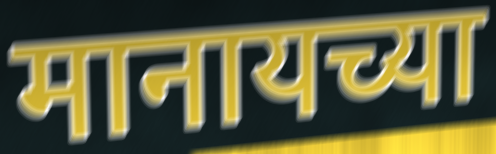
मानायच्या